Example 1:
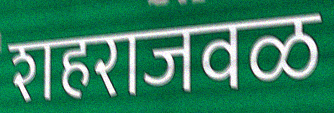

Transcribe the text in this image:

शहराजवळ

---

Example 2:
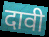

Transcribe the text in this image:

दावी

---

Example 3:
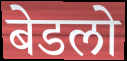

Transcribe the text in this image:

बेडलो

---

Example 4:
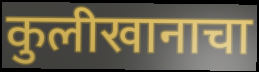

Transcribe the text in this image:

कुलीखानाचा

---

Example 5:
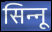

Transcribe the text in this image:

सिन्नू